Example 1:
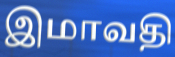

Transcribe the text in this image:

இமாவதி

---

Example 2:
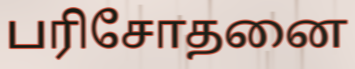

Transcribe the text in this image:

பரிசோதனை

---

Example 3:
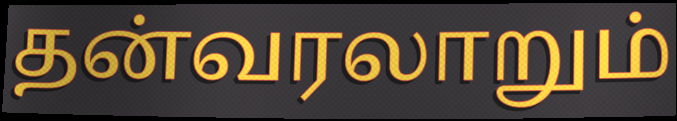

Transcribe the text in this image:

தன்வரலாறும்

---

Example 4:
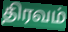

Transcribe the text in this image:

திரவம்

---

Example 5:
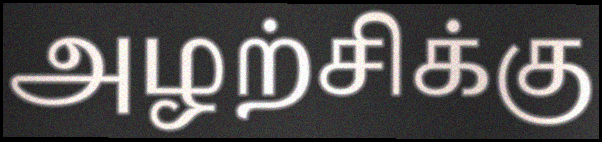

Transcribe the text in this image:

அழற்சிக்கு